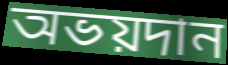
অভয়দান